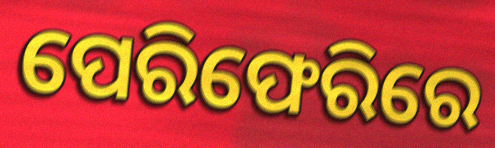
ପେରିଫେରିରେ